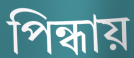
পিন্ধায়